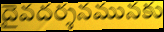
దైవదర్శనమునకు